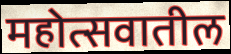
महोत्सवातील